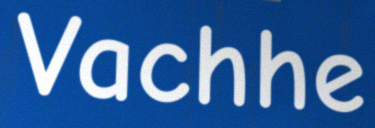
Vachhe